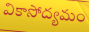
వికాసోద్యమం